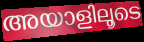
അയാളിലൂടെ